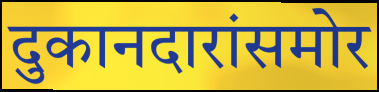
दुकानदारांसमोर